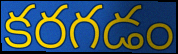
కరగడం